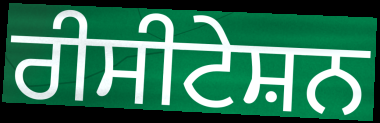
ਰੀਸੀਟੇਸ਼ਨ